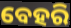
ବେହରି